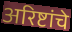
अरिष्टांचे